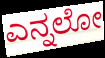
ಎನ್ನಲೋ